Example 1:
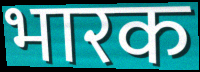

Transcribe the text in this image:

भारक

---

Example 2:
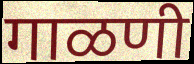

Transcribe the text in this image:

गाळणी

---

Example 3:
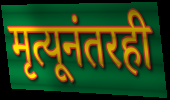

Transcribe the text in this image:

मृत्यूनंतरही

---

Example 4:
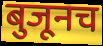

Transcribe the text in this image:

बुजूनच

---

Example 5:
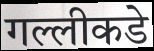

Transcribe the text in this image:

गल्लीकडे